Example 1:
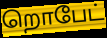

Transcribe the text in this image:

றொபேட்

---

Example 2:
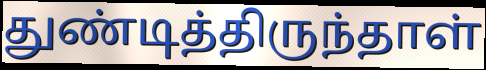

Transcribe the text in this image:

துண்டித்திருந்தாள்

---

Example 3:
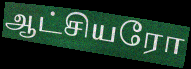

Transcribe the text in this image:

ஆட்சியரோ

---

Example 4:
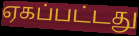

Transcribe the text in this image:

ஏகப்பட்டது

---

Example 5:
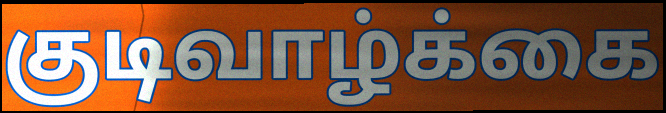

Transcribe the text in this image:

குடிவாழ்க்கை